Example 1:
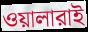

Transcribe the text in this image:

ওয়ালারাই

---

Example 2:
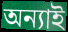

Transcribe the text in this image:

অন্যাই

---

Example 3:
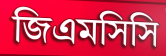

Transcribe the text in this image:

জিএমসিসি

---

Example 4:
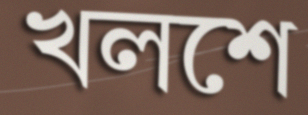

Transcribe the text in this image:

খলশে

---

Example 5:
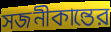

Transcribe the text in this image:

সজনীকান্তের